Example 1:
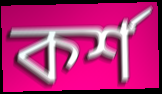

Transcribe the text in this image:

কর্শ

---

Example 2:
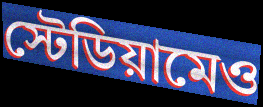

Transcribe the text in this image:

স্টেডিয়ামেও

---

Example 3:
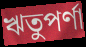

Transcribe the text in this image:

ঋতুপর্ণা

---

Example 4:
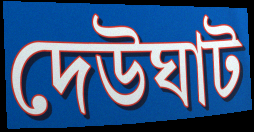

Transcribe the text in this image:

দেউঘাট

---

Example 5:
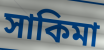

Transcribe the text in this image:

সাকিমা